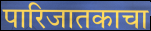
पारिजातकाचा